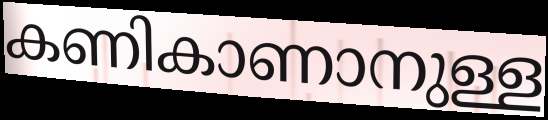
കണികാണാനുള്ള